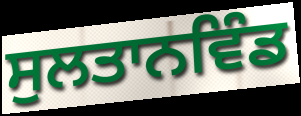
ਸੁਲਤਾਨਵਿੰਡ